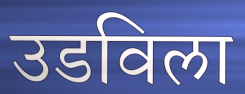
उडविला